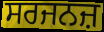
ਸਰਜਨਜ਼